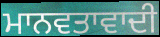
ਮਾਨਵਤਾਵਾਦੀ